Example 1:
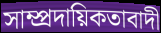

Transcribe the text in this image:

সাম্প্ৰদায়িকতাবাদী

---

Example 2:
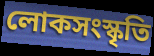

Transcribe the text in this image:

লোকসংস্কৃতি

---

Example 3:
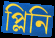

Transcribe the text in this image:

প্লিনি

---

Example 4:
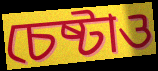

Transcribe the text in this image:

চেষ্টাও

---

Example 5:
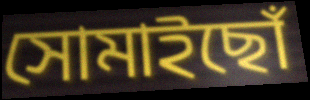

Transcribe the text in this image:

সোমাইছোঁ